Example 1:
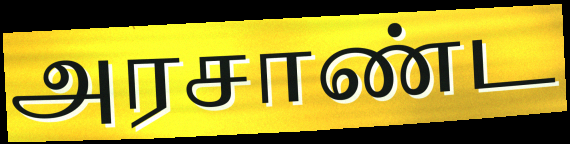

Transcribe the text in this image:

அரசாண்ட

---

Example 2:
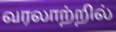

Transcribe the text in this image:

வரலாற்றில்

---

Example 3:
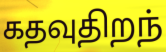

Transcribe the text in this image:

கதவுதிறந்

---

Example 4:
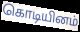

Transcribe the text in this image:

கொடியினம்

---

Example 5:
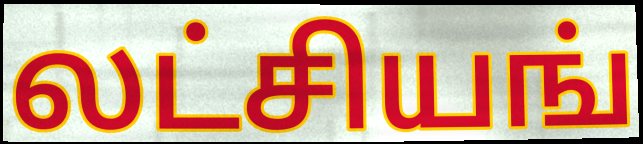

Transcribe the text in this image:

லட்சியங்